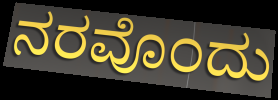
ನರವೊಂದು